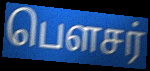
பௌசர்